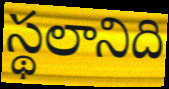
స్థలానిది